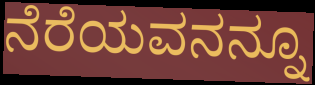
ನೆರೆಯವನನ್ನೂ